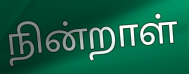
நின்றாள்